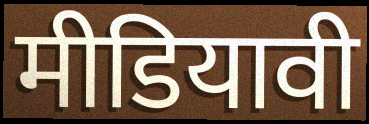
मीडियावी